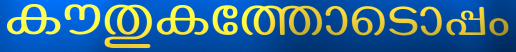
കൗതുകത്തോടൊപ്പം